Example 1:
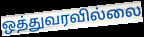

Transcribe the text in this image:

ஒத்துவரவில்லை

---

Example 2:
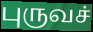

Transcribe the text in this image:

புருவச்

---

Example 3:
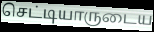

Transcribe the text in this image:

செட்டியாருடைய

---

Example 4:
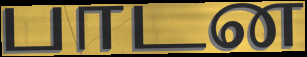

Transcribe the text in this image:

பாடன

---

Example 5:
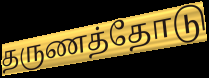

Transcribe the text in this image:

தருணத்தோடு